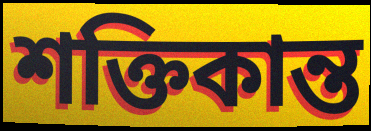
শক্তিকান্ত